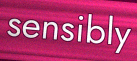
sensibly